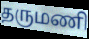
தருமணி